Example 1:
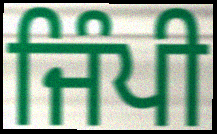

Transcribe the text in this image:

ਜਿੰਪੀ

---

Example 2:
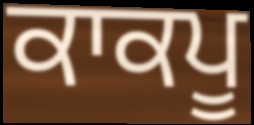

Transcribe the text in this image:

ਕਾਕਪੂ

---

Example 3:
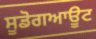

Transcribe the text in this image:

ਸੂਡੋਗਆਊਟ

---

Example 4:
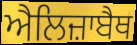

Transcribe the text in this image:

ਐਲਿਜ਼ਾਬੈਥ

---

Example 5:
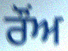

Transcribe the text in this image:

ਰੌਂਅ